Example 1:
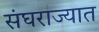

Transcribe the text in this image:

संघराज्यात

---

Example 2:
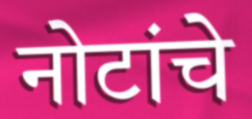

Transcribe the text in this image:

नोटांचे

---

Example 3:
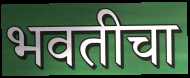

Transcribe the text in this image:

भवतीचा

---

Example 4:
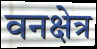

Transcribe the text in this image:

वनक्षेत्र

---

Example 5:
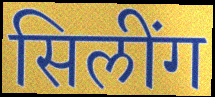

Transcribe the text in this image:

सिलींग